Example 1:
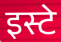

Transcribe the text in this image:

इस्टे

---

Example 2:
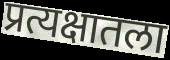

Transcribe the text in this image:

प्रत्यक्षातला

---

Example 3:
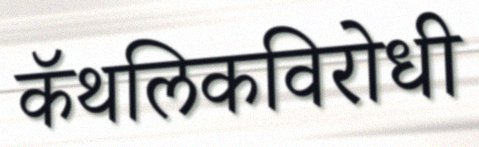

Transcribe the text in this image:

कॅथलिकविरोधी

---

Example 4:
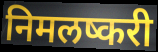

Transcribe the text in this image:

निमलष्करी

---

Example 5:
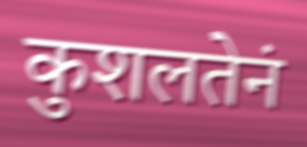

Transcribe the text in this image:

कुशलतेनं